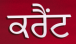
ਕਰੈਂਟ